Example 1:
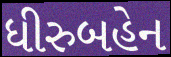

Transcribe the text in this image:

ધીરુબહેન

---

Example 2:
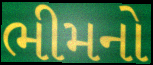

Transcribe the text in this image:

ભીમનો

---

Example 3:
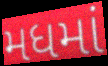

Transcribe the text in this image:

મધમાં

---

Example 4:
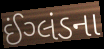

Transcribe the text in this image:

ઈંગ્લંડના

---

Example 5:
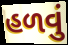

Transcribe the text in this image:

હળવું